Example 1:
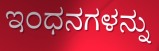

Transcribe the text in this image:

ಇಂಧನಗಳನ್ನು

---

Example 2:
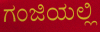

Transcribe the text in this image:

ಗಂಜಿಯಲ್ಲಿ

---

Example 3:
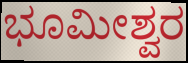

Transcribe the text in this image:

ಭೂಮೀಶ್ವರ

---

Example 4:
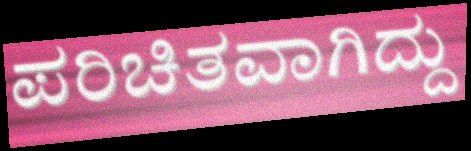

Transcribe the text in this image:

ಪರಿಚಿತವಾಗಿದ್ದು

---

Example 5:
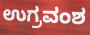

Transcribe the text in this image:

ಉಗ್ರವಂಶ